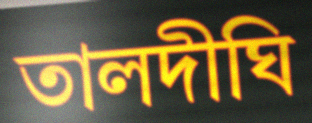
তালদীঘি